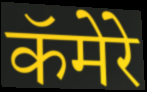
कॅमेरे